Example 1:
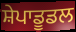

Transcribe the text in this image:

ਸ਼ੇਪਾਡੂਡਲ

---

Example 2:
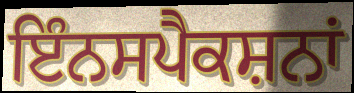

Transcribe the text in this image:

ਇੰਨਸਪੈਕਸ਼ਨਾਂ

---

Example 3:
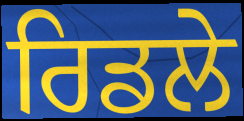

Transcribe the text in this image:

ਰਿਡਲੇ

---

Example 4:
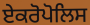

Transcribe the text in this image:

ਏਕਰੋਪੋਲਿਸ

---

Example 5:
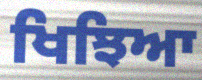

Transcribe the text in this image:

ਖਿਝਿਆ